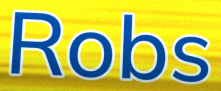
Robs